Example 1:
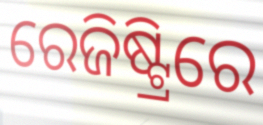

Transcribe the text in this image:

ରେଜିଷ୍ଟ୍ରିରେ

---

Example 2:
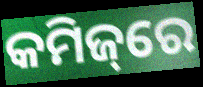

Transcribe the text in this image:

କମିଜ୍‌ରେ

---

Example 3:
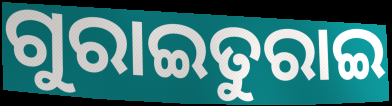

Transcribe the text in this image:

ଗୁରାଇତୁରାଇ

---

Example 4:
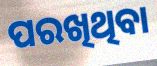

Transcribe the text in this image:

ପରଖିଥିବା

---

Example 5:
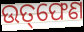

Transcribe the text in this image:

ଉତ୍‌ଫେଣ